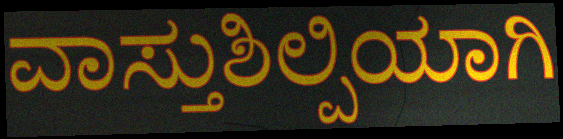
ವಾಸ್ತುಶಿಲ್ಪಿಯಾಗಿ